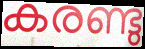
കരണ്ടു